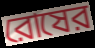
রোষের